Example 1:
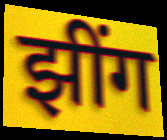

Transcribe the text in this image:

झींग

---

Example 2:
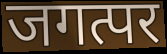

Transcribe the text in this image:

जगत्पर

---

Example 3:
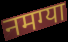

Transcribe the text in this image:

नमग्या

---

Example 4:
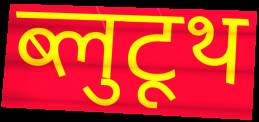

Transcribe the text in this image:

ब्लुटूथ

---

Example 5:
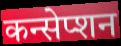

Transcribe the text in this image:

कन्सेप्शन